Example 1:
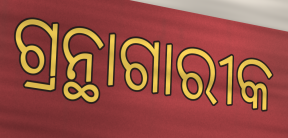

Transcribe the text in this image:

ଗ୍ରନ୍ଥାଗାରୀକ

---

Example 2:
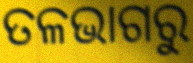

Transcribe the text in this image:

ତଳଭାଗରୁ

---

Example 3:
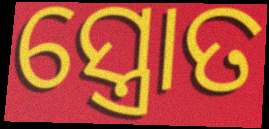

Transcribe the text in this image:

ସ୍ତ୍ରୋତ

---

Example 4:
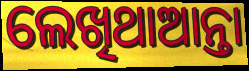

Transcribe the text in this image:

ଲେଖିଥାଆନ୍ତା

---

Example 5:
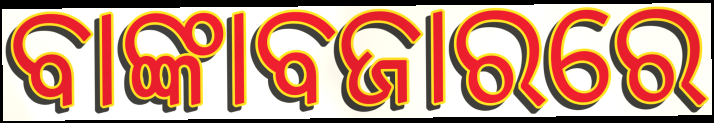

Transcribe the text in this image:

ବାଙ୍କାବଜାରରେ